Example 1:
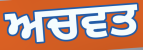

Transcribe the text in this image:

ਅਚਵਤ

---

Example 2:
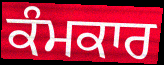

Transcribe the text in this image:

ਕੰਮਕਾਰ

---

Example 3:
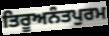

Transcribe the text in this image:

ਤਿਰੂਅਨੰਤਪੁਰਮ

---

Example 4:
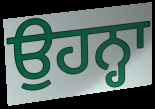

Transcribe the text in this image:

ਉਹਨ੍ਹਾ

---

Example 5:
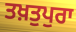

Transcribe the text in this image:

ਤਖ਼ਤੁਪੁਰਾ